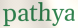
pathya